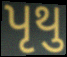
પૃથુ